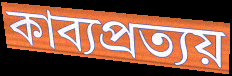
কাব্যপ্রত্যয়